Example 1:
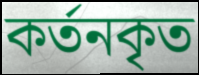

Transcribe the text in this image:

কর্তনকৃত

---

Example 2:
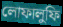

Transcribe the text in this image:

লোফালুফি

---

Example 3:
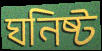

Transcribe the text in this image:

ঘনিষ্ট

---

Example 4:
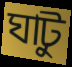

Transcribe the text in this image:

ঘাটু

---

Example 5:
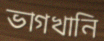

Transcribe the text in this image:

ভাগখানি